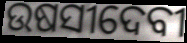
ଉଷସୀଦେବୀ